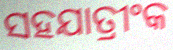
ସହଯାତ୍ରୀଂକ